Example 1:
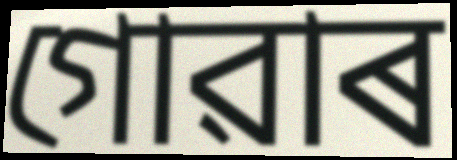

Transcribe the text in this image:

গোৱাৰ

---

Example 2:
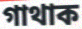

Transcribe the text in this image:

গাথাক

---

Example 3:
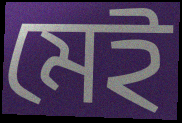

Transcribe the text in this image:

মেই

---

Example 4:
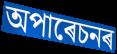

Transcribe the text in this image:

অপাৰেচনৰ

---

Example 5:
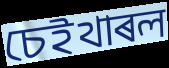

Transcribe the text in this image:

চেইথাৰল